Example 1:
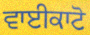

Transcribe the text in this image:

ਵਾਈਕਾਟੋ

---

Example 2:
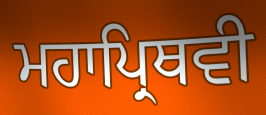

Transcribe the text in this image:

ਮਹਾਪ੍ਰਿਥਵੀ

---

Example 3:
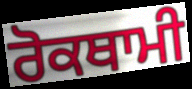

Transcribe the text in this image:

ਰੋਕਥਾਮੀ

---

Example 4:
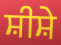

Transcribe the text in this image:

ਸ਼ੀਸ਼ੇ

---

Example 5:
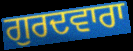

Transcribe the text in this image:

ਗੁਰਦਵਾਰਾ